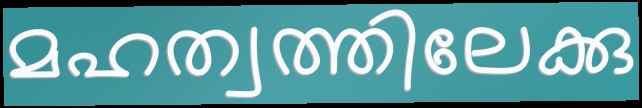
മഹത്വത്തിലേക്കു